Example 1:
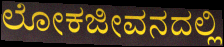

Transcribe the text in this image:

ಲೋಕಜೀವನದಲ್ಲಿ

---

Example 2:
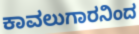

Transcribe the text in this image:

ಕಾವಲುಗಾರನಿಂದ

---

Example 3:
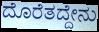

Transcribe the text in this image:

ದೊರೆತದ್ದೇನು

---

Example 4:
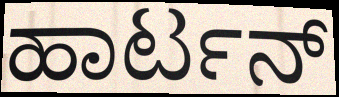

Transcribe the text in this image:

ಹಾರ್ಟನ್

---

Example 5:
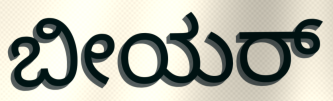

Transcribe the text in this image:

ಬೀಯರ್